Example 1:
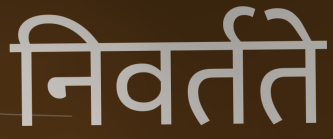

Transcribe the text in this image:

निवर्तते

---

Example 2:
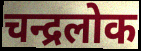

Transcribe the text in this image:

चन्द्रलोक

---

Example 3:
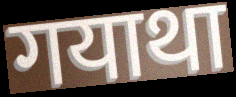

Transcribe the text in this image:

गयाथा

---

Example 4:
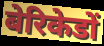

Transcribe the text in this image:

बेरिकेडों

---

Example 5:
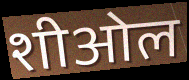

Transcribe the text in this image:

शीओल